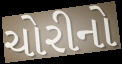
ચોરીનો